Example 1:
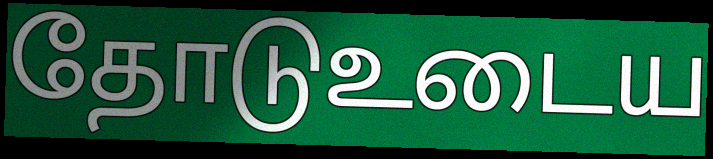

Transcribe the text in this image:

தோடுஉடைய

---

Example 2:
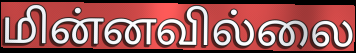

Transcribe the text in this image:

மின்னவில்லை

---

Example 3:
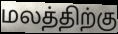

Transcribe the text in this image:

மலத்திற்கு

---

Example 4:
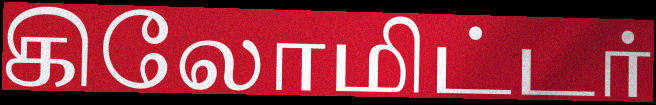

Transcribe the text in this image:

கிலோமிட்டர்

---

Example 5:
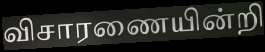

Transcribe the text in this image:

விசாரணையின்றி